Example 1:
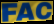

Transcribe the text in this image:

FAC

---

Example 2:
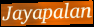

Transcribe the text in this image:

Jayapalan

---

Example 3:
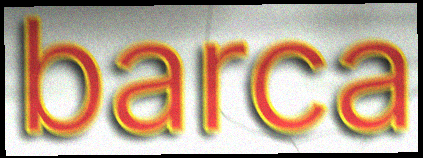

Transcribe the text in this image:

barca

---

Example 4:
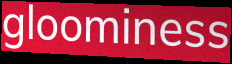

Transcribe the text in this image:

gloominess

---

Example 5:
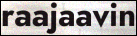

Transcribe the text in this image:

raajaavin